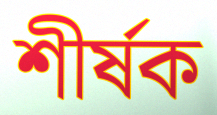
শীর্ষক